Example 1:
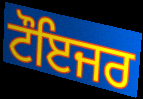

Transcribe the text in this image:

ਟੌਇਜਰ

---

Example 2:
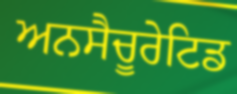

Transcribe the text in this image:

ਅਨਸੈਚੂਰੇਟਿਡ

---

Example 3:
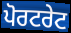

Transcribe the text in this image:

ਪੋਰਟਰੇਟ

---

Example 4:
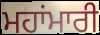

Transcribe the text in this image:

ਮਹਾਂਮਾਰੀ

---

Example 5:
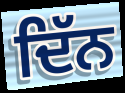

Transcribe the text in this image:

ਦਿੱਨ